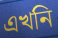
এখনি